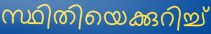
സ്ഥിതിയെക്കുറിച്ച്